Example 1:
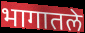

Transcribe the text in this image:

भागातले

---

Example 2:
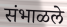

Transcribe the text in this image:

संभाळले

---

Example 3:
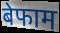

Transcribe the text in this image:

बेफाम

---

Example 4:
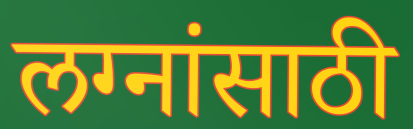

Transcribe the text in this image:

लग्नांसाठी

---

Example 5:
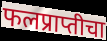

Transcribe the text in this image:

फलप्राप्तीचा